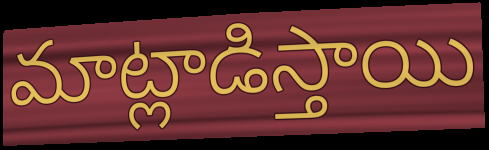
మాట్లాడిస్తాయి